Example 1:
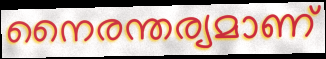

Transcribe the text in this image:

നൈരന്തര്യമാണ്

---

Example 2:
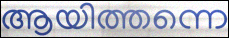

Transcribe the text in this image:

ആയിത്തന്നെ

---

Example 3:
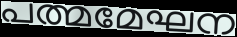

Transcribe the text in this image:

പത്മമേഘന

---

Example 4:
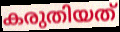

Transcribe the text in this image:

കരുതിയത്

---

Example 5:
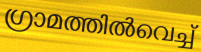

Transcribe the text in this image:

ഗ്രാമത്തിൽവെച്ച്